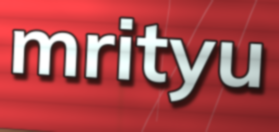
mrityu